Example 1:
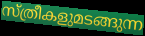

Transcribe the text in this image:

സ്ത്രീകളുമടങ്ങുന്ന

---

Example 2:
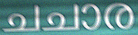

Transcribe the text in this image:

ചചാര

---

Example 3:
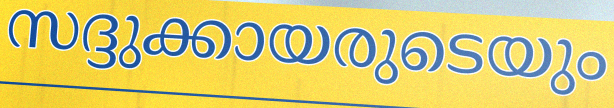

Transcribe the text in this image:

സദ്ദുക്കായരുടെയും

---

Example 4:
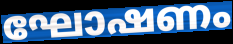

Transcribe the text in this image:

ഘോഷണം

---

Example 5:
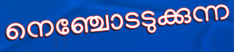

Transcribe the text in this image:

നെഞ്ചോടടുക്കുന്ന